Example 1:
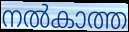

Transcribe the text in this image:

നൽകാത്ത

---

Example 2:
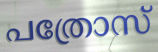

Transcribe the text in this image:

പത്രോസ്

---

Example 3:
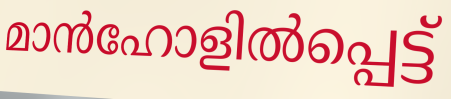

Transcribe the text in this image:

മാൻഹോളിൽപ്പെട്ട്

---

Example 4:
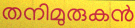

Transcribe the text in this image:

തനിമുരുകൻ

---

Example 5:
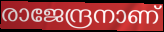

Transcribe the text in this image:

രാജേന്ദ്രനാണ്